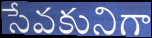
సేవకునిగా